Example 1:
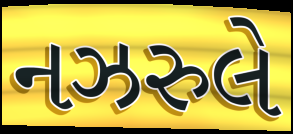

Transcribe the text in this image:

નઝરુલે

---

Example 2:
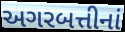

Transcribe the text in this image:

અગરબત્તીનાં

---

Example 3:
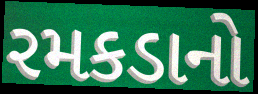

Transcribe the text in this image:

રમકડાનો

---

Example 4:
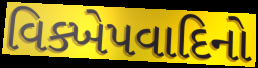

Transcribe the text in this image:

વિક્ખેપવાદિનો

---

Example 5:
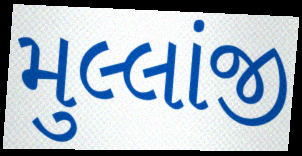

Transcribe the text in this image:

મુલ્લાંજી